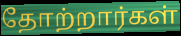
தோற்றார்கள்